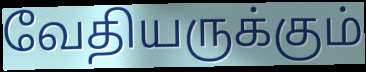
வேதியருக்கும்